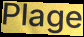
Plage